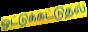
ஒட்டுக்கட்டுதல்